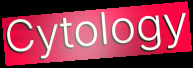
Cytology